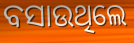
ବସାଉଥିଲେ